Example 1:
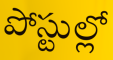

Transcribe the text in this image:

పోస్టుల్లో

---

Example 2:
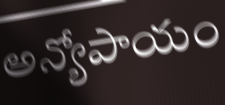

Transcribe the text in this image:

అన్యోపాయం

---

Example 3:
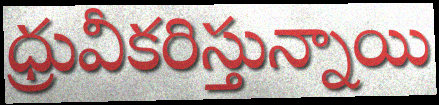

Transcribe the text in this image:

ధ్రువీకరిస్తున్నాయి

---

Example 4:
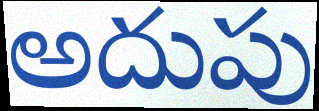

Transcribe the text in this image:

అదుపు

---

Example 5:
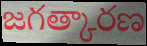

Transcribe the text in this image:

జగత్కారణ